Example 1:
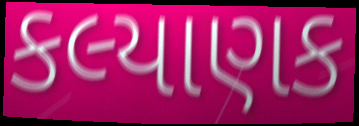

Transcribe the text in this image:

કલ્યાણક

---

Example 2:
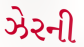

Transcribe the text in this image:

ઝેરની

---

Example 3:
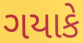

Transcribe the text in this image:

ગયાકે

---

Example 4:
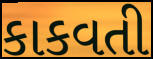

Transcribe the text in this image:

કાકવતી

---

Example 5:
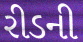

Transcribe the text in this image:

રીડની